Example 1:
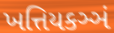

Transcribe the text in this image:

ખત્તિયકઞ્ઞં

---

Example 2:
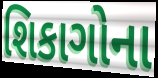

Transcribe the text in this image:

શિકાગોના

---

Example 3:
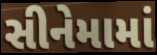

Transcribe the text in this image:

સીનેમામાં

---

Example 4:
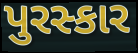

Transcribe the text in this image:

પુરસ્કાર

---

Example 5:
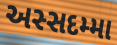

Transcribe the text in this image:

અસ્સદમ્મા